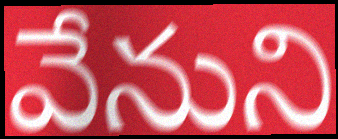
వేనుని